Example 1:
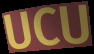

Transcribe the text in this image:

UCU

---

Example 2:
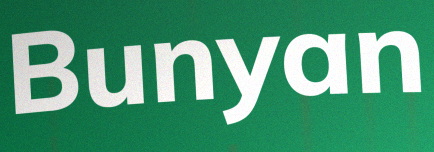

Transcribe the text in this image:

Bunyan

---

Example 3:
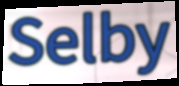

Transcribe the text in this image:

Selby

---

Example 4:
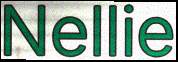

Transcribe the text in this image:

Nellie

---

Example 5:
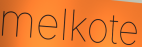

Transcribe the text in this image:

melkote